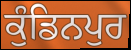
ਕੁੰਡਿਨਪੁਰ